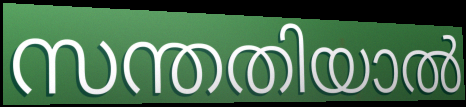
സന്തതിയാൽ